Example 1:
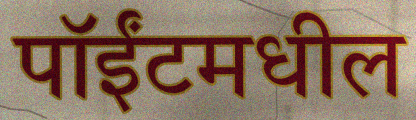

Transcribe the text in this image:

पॉईंटमधील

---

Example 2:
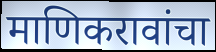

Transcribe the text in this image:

माणिकरावांचा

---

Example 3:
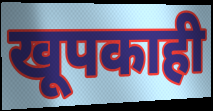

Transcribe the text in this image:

खूपकाही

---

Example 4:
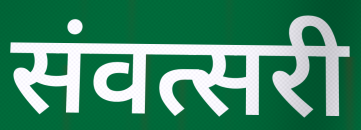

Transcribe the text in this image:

संवत्सरी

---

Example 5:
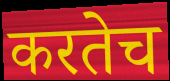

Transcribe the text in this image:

करतेच